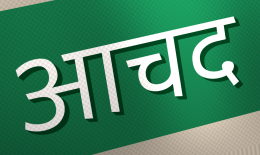
आचद